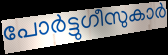
പോർട്ടുഗീസുകാർ